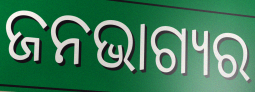
ଜନଭାଗ୍ୟର